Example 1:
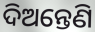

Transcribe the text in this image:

ଦିଅନ୍ତେଣି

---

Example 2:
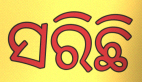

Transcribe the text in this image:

ସରିଛି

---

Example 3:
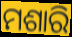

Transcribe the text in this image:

ମଶାରି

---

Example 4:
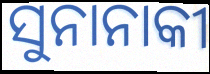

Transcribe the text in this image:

ସୁନାନାକୀ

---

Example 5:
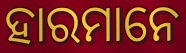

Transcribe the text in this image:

ହାରମାନେ